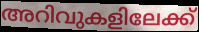
അറിവുകളിലേക്ക്